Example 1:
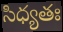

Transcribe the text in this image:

సిధ్యతః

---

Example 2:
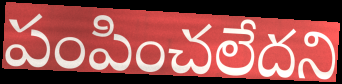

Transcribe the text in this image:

పంపించలేదని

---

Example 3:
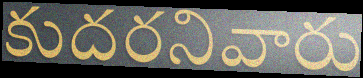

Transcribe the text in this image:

కుదరనివారు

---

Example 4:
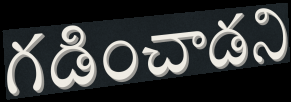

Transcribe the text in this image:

గడించాడని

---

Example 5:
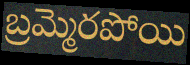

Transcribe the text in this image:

బ్రమ్మెరపోయి